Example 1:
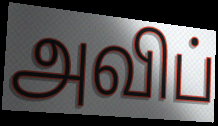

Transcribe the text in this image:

அவிப்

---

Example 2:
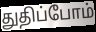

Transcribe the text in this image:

துதிப்போம்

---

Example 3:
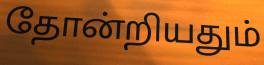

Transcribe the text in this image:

தோன்றியதும்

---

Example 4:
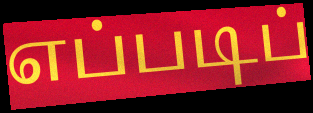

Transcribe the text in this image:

எப்படிப்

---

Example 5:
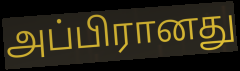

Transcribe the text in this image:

அப்பிரானது